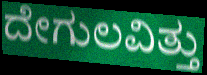
ದೇಗುಲವಿತ್ತು